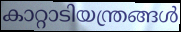
കാറ്റാടിയന്ത്രങ്ങൾ